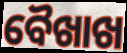
ବୈଖାଖ